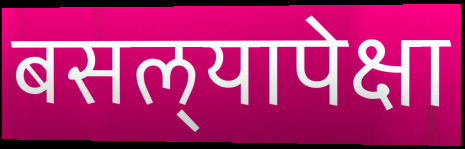
बसल्यापेक्षा